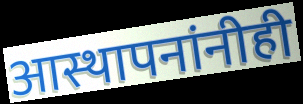
आस्थापनांनीही